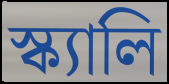
স্ক্যালি